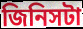
জিনিসটা